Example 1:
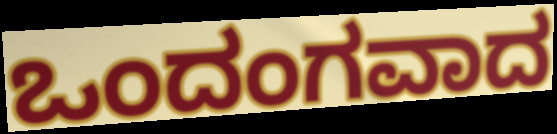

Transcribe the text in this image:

ಒಂದಂಗವಾದ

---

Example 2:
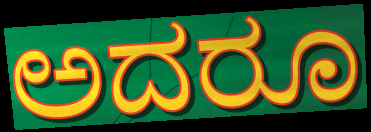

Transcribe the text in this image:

ಅದರೂ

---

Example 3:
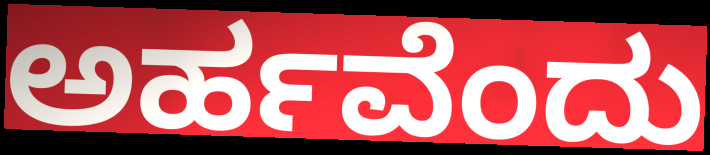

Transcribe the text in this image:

ಅರ್ಹವೆಂದು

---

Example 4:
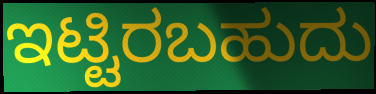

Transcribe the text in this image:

ಇಟ್ಟಿರಬಹುದು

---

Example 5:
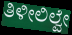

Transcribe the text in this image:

ತಿಳೀಲಿಲ್ವೇ